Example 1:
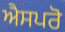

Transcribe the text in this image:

ਐਸਪਰੋ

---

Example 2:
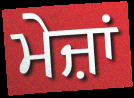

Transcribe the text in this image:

ਮੇਜ਼ਾਂ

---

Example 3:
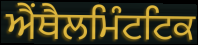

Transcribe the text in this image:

ਐਂਥੈਲਮਿੰਟਟਿਕ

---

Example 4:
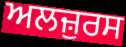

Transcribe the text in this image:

ਅਲਜ਼ੁਰਸ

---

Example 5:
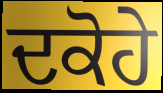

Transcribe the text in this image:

ਦਕੋਹੇ